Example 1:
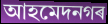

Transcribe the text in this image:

আহমেদনগৰ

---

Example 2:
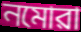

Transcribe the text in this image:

নমোৱা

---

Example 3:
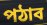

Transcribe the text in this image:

পঠাব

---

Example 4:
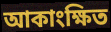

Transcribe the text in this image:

আকাংক্ষিত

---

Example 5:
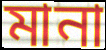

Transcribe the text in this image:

মানা